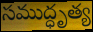
సముద్ధృత్య